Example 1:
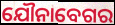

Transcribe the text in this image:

ଯୌନାବେଗର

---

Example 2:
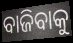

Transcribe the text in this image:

ବାଜିବାକୁ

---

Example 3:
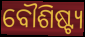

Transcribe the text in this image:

ବୌଶିଷ୍ଟ୍ୟ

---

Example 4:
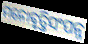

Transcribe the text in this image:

ମନୋବୃତ୍ତିସଂପନ୍ନ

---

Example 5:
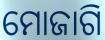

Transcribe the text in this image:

ମୋଜାଗି